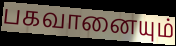
பகவானையும்